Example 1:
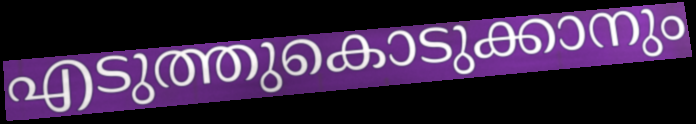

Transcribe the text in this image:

എടുത്തുകൊടുക്കാനും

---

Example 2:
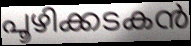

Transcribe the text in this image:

പൂഴിക്കടകൻ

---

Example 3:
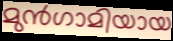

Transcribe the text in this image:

മുൻഗാമിയായ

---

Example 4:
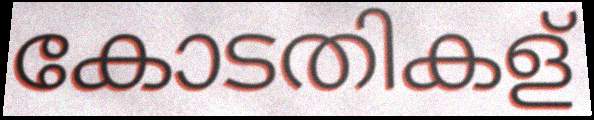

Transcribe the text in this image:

കോടതികള്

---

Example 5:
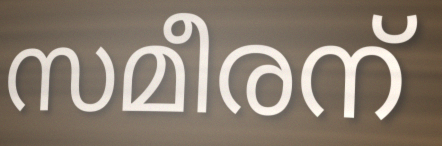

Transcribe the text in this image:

സമീരന്